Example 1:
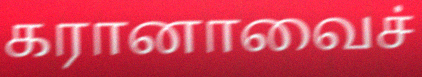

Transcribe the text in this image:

கரானாவைச்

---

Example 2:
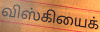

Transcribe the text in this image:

விஸ்கியைக்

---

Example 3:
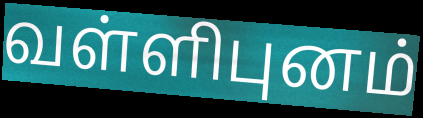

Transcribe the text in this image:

வள்ளிபுனம்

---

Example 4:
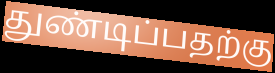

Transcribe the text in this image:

துண்டிப்பதற்கு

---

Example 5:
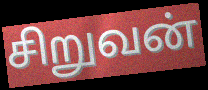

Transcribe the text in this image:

சிறுவன்